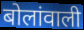
बोलांवाली